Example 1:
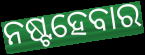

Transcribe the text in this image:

ନଷ୍ଟହେବାର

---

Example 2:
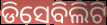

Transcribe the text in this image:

ଡିସେବିଲିଟି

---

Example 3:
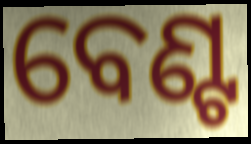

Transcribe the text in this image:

ବେଣ୍ଟ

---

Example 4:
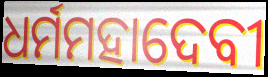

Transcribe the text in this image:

ଧର୍ମମହାଦେବୀ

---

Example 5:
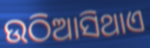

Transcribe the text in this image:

ଉଠିଆସିଥାଏ